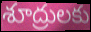
శూద్రులకు